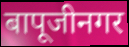
बापूजीनगर